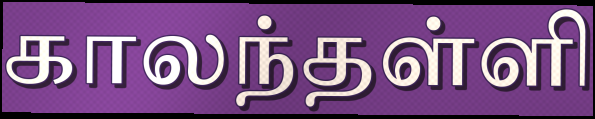
காலந்தள்ளி